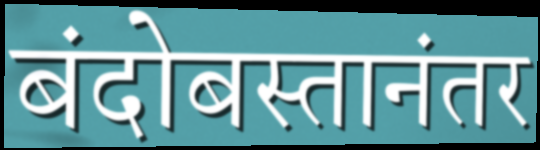
बंदोबस्तानंतर